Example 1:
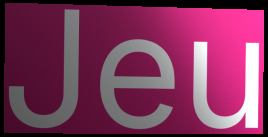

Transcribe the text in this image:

Jeu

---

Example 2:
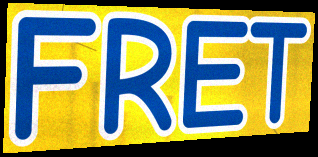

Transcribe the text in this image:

FRET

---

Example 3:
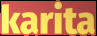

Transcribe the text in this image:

karita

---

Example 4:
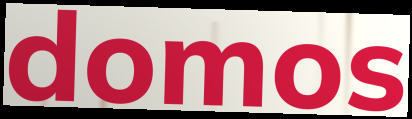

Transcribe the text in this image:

domos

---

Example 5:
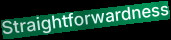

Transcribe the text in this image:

Straightforwardness